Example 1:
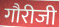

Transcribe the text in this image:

गौरीजी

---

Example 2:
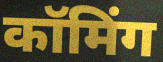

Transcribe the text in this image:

कॉमिंग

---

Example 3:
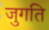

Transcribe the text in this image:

जुगति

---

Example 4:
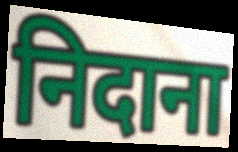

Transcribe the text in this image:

निदाना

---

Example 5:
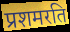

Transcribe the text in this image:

प्रशमरति